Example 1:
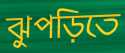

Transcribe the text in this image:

ঝুপড়িতে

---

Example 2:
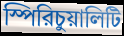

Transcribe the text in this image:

স্পিরিচুয়ালিটি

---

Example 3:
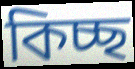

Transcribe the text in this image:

কিচ্ছ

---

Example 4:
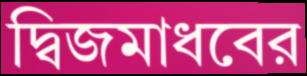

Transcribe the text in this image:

দ্বিজমাধবের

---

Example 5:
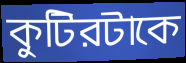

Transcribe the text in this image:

কুটিরটাকে